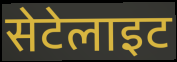
सेटेलाइट